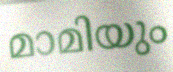
മാമിയും